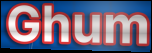
Ghum